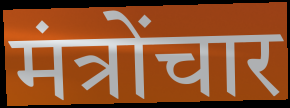
मंत्रोंचार